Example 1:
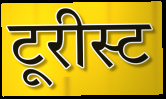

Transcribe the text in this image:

टूरीस्ट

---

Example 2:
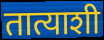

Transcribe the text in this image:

तात्याशी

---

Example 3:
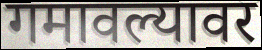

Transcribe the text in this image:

गमावल्यावर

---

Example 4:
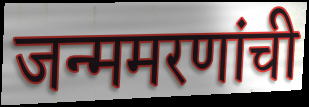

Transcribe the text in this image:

जन्ममरणांची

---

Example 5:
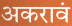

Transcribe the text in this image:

अकरावं